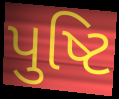
પુષ્ટિ